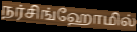
நர்சிங்ஹோமில்